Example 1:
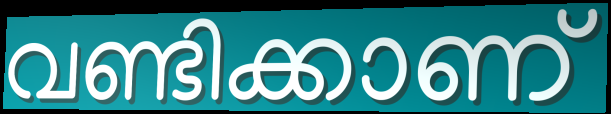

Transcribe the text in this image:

വണ്ടിക്കാണ്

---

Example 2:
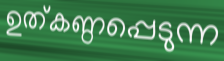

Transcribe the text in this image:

ഉത്കണ്ഠപ്പെടുന്ന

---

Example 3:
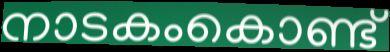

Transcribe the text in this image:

നാടകംകൊണ്ട്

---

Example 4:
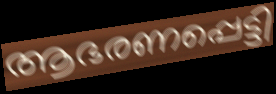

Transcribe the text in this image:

ആഭരണപ്പെട്ടി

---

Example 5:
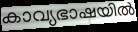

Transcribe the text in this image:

കാവ്യഭാഷയിൽ